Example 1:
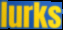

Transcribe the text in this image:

lurks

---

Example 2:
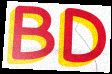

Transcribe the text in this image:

BD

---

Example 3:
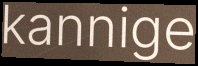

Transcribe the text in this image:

kannige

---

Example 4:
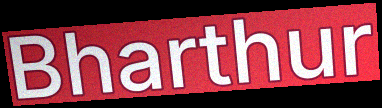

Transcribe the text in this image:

Bharthur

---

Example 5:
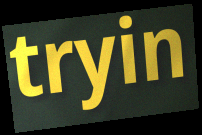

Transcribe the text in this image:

tryin